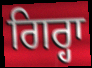
ਗਿਰ੍ਹਾ